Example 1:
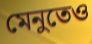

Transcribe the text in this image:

মেনুতেও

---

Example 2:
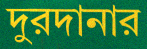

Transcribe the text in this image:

দুরদানার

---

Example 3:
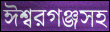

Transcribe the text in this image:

ঈশ্বরগঞ্জসহ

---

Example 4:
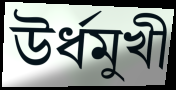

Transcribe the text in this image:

উর্ধমুখী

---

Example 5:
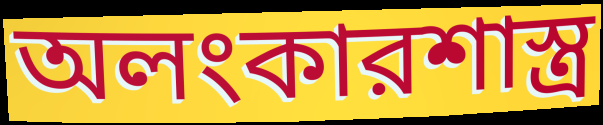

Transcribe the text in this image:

অলংকারশাস্ত্র